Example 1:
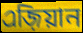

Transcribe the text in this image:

এজ়িয়ান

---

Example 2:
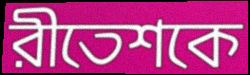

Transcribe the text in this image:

রীতেশকে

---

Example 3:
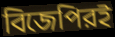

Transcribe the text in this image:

বিজেপিরই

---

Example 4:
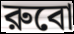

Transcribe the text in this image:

রুবো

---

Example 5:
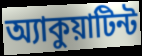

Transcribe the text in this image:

অ্যাকুয়াটিন্ট